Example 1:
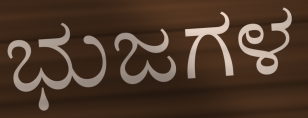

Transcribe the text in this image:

ಭುಜಗಳ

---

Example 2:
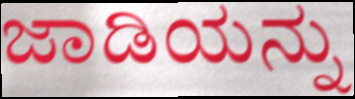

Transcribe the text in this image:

ಜಾಡಿಯನ್ನು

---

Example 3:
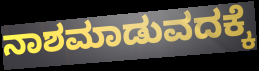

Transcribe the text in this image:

ನಾಶಮಾಡುವದಕ್ಕೆ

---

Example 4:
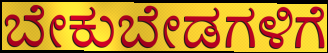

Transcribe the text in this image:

ಬೇಕುಬೇಡಗಳಿಗೆ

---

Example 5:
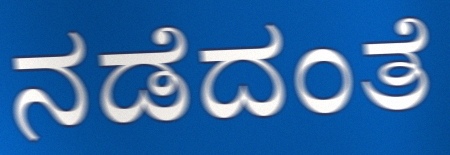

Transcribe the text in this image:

ನಡೆದಂತೆ